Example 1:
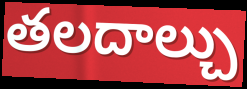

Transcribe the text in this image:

తలదాల్చు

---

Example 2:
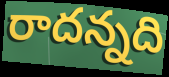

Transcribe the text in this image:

రాదన్నది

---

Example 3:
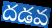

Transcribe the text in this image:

దడవ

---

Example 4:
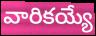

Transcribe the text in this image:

వారికయ్యే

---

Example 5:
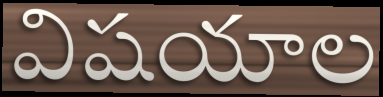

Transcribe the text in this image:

విషయాల